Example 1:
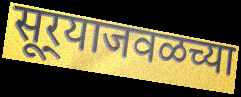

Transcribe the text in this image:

सूर्याजवळच्या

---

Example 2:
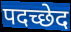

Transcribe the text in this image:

पदच्छेद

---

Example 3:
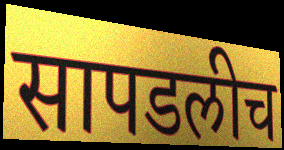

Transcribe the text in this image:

सापडलीच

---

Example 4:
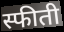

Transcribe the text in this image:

स्फीती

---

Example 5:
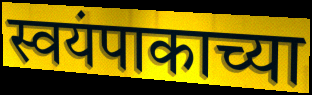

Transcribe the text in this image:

स्वयंपाकाच्या